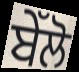
ਬੇੱਲੋ